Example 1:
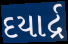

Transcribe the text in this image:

દયાર્દ્ર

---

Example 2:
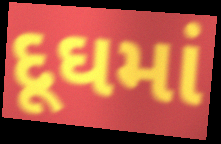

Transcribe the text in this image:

દૂઘમાં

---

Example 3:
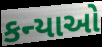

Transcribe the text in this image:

કન્યાઓ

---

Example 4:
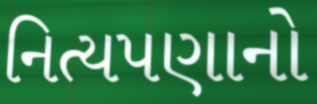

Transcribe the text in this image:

નિત્યપણાનો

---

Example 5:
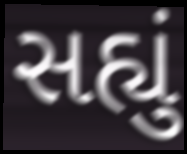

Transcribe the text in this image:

સહ્યું